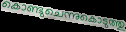
കൊണ്ടുചെന്നുകൊടുത്തു